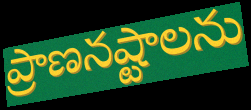
ప్రాణనష్టాలను